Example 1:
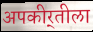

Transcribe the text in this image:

अपकीर्तीला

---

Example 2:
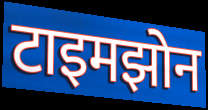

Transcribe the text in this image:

टाइमझोन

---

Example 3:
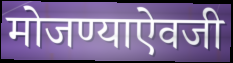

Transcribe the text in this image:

मोजण्याऐवजी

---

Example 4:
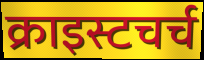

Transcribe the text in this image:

क्राइस्टचर्च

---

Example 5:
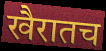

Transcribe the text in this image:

खैरातच